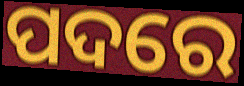
ପଦରେ